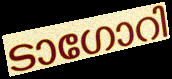
ടാഗോറി